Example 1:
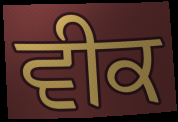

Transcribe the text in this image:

ਵੀਕ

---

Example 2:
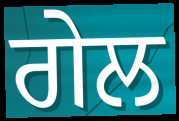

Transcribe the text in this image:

ਗੇਲ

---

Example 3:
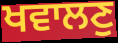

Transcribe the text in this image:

ਖਵਾਲਣੁ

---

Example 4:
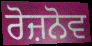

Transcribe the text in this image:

ਰੋਜ਼ਨੋਵ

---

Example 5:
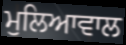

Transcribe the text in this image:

ਮੁਲਿਆਵਾਲ